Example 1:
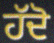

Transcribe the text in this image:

ਹੱਦੋ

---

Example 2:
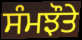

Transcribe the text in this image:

ਸੰਮਝੌਤੇ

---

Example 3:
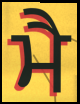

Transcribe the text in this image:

ਮੈ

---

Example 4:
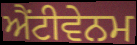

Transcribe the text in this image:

ਐਂਟੀਵੇਨਮ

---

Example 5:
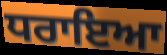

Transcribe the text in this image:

ਧਰਾਇਆ